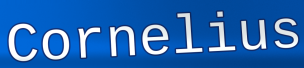
Cornelius